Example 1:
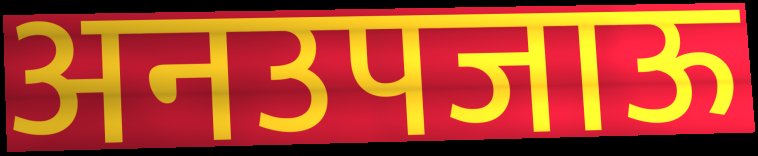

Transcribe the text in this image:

अनउपजाऊ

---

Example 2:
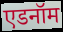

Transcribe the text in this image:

एडनॉम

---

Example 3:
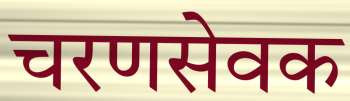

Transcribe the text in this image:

चरणसेवक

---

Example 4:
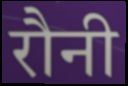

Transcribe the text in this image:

रौनी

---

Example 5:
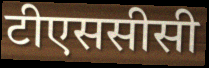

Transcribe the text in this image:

टीएससीसी